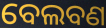
ବେଲବଣ